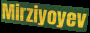
Mirziyoyev